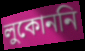
লুকোননি